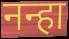
नन्हा